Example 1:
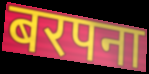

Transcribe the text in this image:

बरपना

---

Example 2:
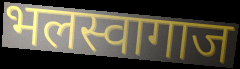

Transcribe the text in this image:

भलस्वागाज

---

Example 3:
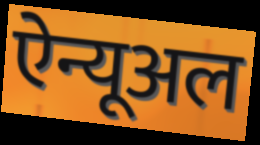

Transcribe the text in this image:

ऐन्यूअल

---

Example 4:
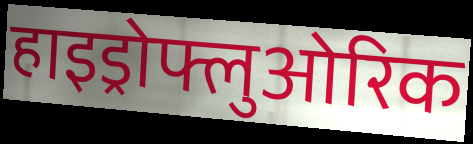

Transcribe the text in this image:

हाइड्रोफ्लुओरिक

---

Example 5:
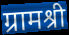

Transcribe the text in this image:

ग्रामश्री